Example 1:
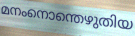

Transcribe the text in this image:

മനംനൊന്തെഴുതിയ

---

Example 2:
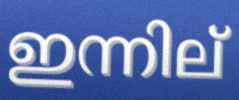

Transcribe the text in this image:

ഇന്നില്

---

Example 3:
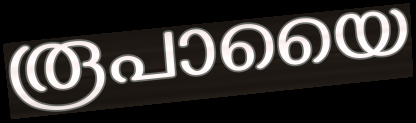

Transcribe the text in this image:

രൂപായൈ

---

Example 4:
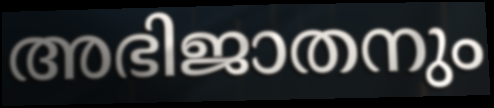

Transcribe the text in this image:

അഭിജാതനും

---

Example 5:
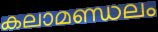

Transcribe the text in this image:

കലാമണ്ഡലം